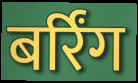
बर्रिंग